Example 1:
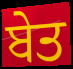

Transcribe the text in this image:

ਬੇਤ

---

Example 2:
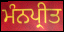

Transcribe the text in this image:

ਮੰਨਪ੍ਰੀਤ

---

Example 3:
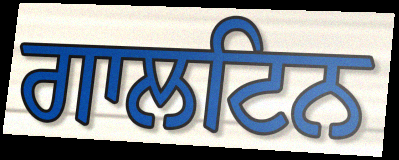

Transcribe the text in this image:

ਗਾਲਟਿਨ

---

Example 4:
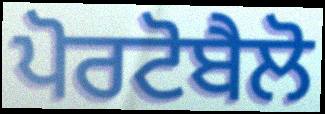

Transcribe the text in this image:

ਪੋਰਟੋਬੈਲੋ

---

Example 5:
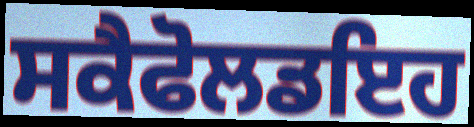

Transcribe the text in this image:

ਸਕੈਫੋਲਡਇਹ